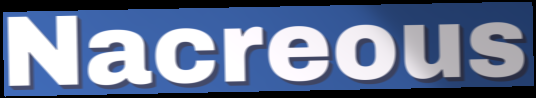
Nacreous